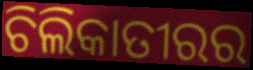
ଚିଲିକାତୀରର